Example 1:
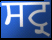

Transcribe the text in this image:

ਸਟ੍ਰ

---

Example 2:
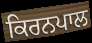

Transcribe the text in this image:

ਕਿਰਨਪਾਲ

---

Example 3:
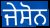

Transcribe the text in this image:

ਜੇਸੋਨ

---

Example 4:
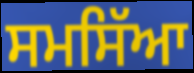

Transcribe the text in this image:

ਸਮਸਿੱਆ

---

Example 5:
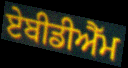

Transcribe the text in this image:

ਏਬੀਡੀਐੱਮ